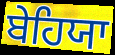
ਬੇਹਿਯਾ